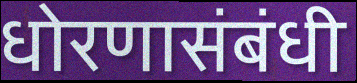
धोरणासंबंधी